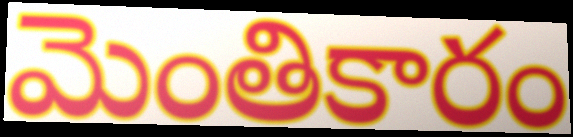
మెంతికారం